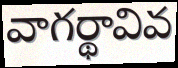
వాగర్థావివ